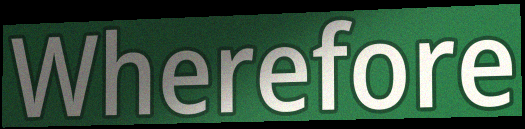
Wherefore